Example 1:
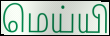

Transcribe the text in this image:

மெய்யி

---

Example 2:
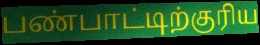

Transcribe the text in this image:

பண்பாட்டிற்குரிய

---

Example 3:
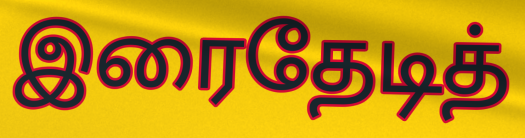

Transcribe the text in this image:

இரைதேடித்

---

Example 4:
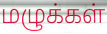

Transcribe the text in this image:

மழுக்கள்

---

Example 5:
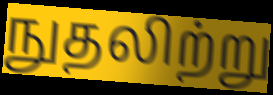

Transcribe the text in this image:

நுதலிற்று